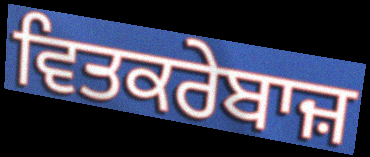
ਵਿਤਕਰੇਬਾਜ਼